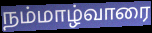
நம்மாழ்வாரை